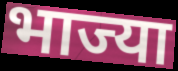
भाज्या